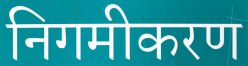
निगमीकरण